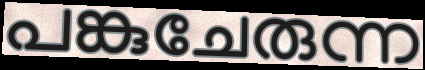
പങ്കുചേരുന്ന